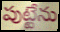
పుట్టేను